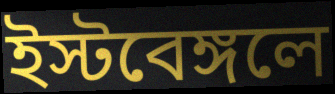
ইস্টবেঙ্গলে